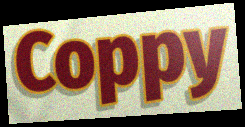
Coppy